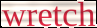
wretch